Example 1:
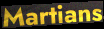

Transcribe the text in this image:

Martians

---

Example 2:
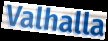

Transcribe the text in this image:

Valhalla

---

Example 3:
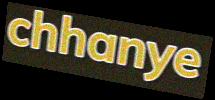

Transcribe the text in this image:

chhanye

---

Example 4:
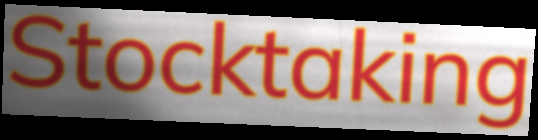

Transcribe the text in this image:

Stocktaking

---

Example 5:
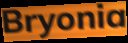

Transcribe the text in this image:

Bryonia